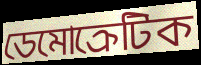
ডেমোক্রেটিক